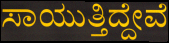
ಸಾಯುತ್ತಿದ್ದೇವೆ